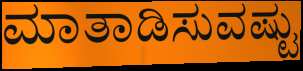
ಮಾತಾಡಿಸುವಷ್ಟು